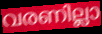
വരണില്ലാ